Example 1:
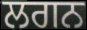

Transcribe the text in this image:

ਲਗਨ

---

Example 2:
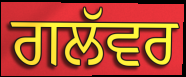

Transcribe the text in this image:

ਗਲੱਵਰ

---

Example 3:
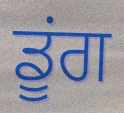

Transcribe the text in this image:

ਡੂਂਗ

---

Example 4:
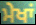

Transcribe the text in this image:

ਮੇਖਾਂ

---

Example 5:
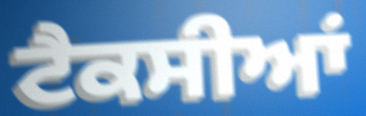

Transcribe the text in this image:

ਟੈਕਸੀਆਂ